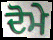
ਦੋਮੇ